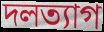
দলত্যাগ